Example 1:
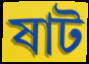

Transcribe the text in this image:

ষাট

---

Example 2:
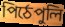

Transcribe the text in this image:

পিঠেপুলি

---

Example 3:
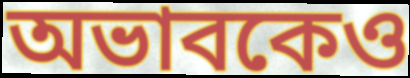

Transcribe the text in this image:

অভাবকেও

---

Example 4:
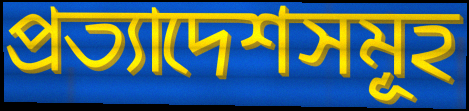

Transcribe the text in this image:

প্রত্যাদেশসমূহ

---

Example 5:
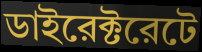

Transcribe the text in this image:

ডাইরেক্টরেটে